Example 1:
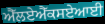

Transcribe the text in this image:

ਐੱਲਏਐੱਕਸਏਆਈ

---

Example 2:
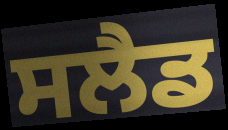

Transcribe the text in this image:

ਸਲੈਡ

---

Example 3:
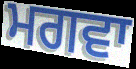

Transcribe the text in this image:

ਮਗਵਾ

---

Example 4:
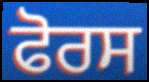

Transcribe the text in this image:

ਫੋਰਸ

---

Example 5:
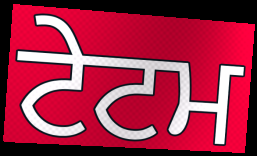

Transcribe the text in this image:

ਟੇਟਮ